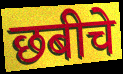
छबीचे